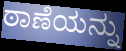
ಠಾಣೆಯನ್ನು